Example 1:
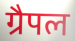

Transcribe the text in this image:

ग्रैपल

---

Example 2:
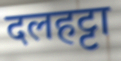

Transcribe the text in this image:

दलहट्टा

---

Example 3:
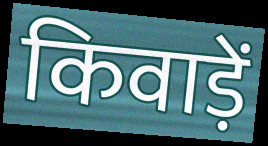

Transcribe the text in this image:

किवाड़ें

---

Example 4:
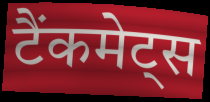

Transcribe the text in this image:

टैंकमेट्स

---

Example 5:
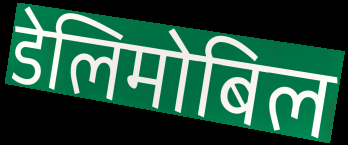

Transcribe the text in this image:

डेलिमोबिल